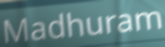
Madhuram